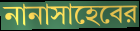
নানাসাহেবের